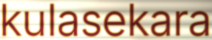
kulasekara